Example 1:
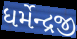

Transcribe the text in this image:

ધર્મેન્દ્રજી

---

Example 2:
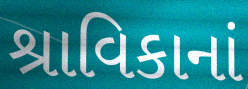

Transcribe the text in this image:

શ્રાવિકાનાં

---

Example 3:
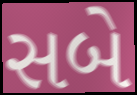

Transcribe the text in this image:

સબે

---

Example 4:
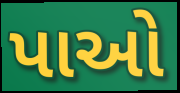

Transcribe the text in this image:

પાઓ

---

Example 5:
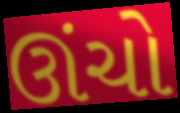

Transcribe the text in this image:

ઊંચો